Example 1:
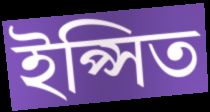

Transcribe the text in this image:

ইপ্সিত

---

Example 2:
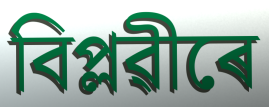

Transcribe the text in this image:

বিপ্লৱীৰে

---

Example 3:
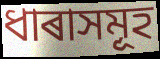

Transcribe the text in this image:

ধাৰাসমূহ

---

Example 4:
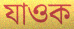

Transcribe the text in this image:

যাওক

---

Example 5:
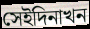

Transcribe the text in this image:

সেইদিনাখন